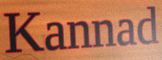
Kannad